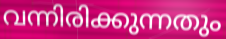
വന്നിരിക്കുന്നതും